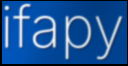
ifapy